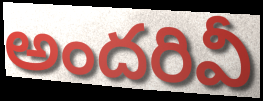
అందరివీ